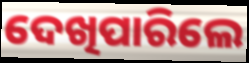
ଦେଖିପାରିଲେ